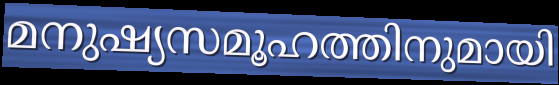
മനുഷ്യസമൂഹത്തിനുമായി